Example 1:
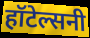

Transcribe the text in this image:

हॉटेल्सनी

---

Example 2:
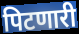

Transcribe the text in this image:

पिटणारी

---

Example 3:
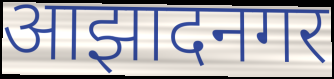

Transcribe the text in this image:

आझादनगर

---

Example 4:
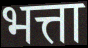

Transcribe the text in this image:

भत्ता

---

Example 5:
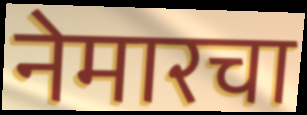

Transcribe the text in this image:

नेमारचा